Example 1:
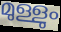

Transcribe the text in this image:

മുള്ളും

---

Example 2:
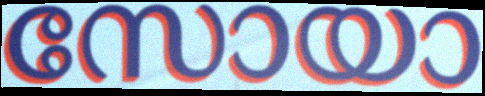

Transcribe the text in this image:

സോയാ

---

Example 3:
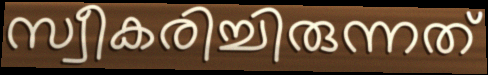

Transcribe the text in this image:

സ്വീകരിച്ചിരുന്നത്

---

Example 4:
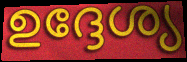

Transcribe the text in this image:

ഉദ്ദേശ്യ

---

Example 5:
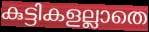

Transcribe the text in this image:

കുട്ടികളല്ലാതെ